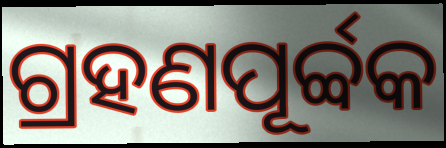
ଗ୍ରହଣପୂର୍ବ୍ବକ